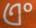
ଏଂ